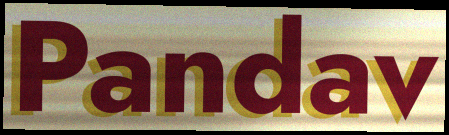
Pandav